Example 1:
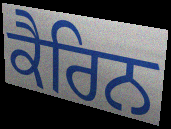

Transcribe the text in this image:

ਕੈਰਿਨ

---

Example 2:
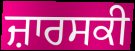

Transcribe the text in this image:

ਜ਼ਾਰਸਕੀ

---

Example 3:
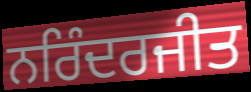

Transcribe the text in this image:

ਨਰਿੰਦਰਜੀਤ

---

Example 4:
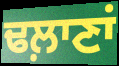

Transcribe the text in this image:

ਢਲ਼ਾਣਾਂ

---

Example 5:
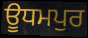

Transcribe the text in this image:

ਊਧਮਪੁਰ